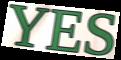
YES